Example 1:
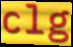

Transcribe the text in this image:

clg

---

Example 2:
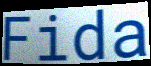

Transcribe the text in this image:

Fida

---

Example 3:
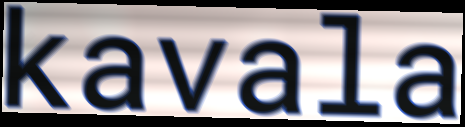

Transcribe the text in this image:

kavala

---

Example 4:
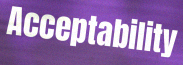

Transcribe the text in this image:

Acceptability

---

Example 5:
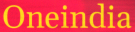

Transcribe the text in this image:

Oneindia